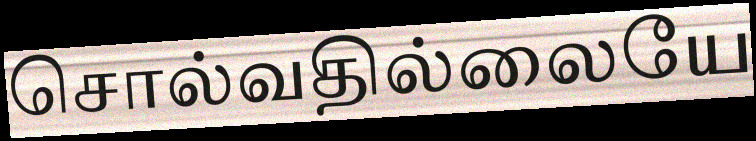
சொல்வதில்லையே